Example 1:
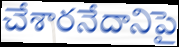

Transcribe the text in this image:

చేశారనేదానిపై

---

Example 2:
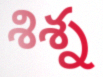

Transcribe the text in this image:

శిశ్న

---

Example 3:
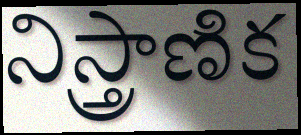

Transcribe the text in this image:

నిస్త్రాణిక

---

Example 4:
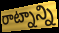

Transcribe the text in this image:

రాట్నాన్ని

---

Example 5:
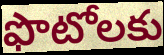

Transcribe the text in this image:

ఫొటోలకు